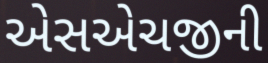
એસએચજીની